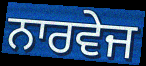
ਨਾਰਵੇਜ